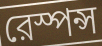
রেস্পন্স